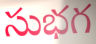
సుభగ